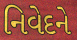
નિવેદને